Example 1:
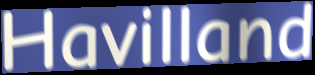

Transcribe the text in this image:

Havilland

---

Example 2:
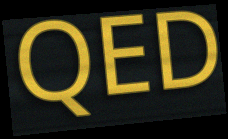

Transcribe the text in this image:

QED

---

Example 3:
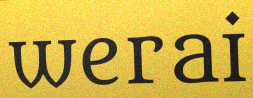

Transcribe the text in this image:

werai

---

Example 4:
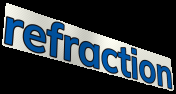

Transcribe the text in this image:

refraction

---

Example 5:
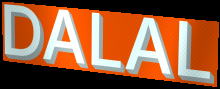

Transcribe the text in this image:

DALAL